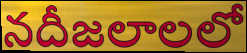
నదీజలాలలో